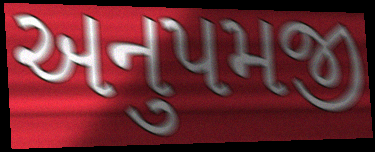
અનુપમજી